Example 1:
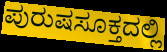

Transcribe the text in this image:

ಪುರುಷಸೂಕ್ತದಲ್ಲಿ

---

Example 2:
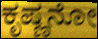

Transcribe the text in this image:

ಕೃಷ್ಣನೋ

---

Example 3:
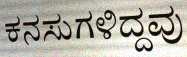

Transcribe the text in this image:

ಕನಸುಗಳಿದ್ದವು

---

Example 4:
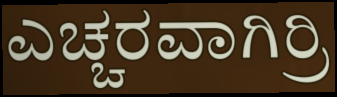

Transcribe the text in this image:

ಎಚ್ಚರವಾಗಿರ್ರಿ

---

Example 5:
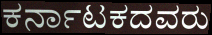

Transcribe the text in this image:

ಕರ್ನಾಟಕದವರು